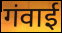
गंवाई